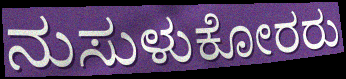
ನುಸುಳುಕೋರರು